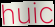
huic